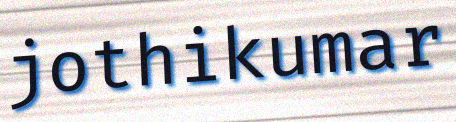
jothikumar